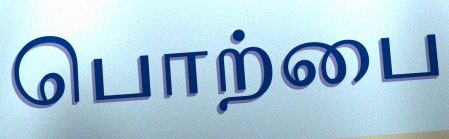
பொற்பை